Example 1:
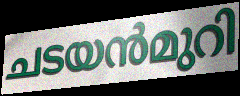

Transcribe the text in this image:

ചടയൻമുറി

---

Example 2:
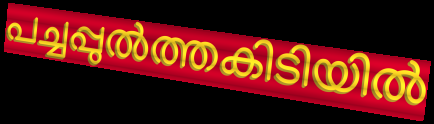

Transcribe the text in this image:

പച്ചപ്പുൽത്തകിടിയിൽ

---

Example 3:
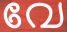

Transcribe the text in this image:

വേ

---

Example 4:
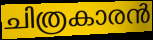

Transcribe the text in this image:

ചിത്രകാരൻ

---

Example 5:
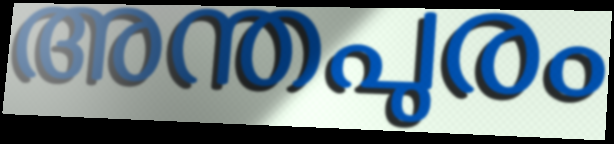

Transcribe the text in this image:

അന്തപുരം